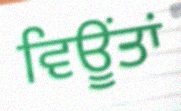
ਵਿਊਂਤਾਂ